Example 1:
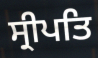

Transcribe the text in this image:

ਸ੍ਰੀਪਤਿ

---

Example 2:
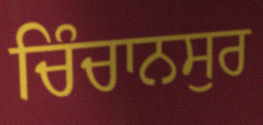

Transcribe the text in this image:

ਚਿੰਚਾਨਸੁਰ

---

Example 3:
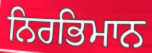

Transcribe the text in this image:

ਨਿਰਭਿਮਾਨ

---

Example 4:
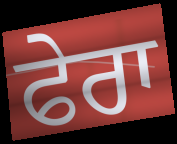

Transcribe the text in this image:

ਫੇਰਾ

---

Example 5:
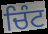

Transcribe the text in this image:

ਚਿੰਟ